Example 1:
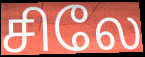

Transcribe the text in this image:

சிலே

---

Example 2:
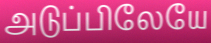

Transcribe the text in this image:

அடுப்பிலேயே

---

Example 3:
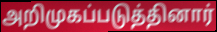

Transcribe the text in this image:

அறிமுகப்படுத்தினார்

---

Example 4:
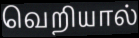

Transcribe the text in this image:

வெறியால்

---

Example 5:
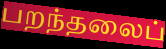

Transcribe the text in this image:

பறந்தலைப்